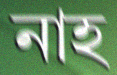
নাহ